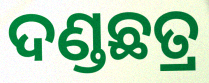
ଦଣ୍ଡଛତ୍ର